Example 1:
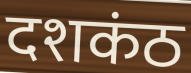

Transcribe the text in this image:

दशकंठ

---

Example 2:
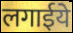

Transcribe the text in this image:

लगाईये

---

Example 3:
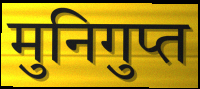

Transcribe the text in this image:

मुनिगुप्त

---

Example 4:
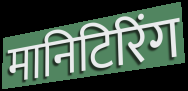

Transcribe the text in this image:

मानिटिरिंग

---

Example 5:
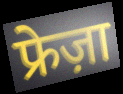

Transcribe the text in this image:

फ्रेज़ा